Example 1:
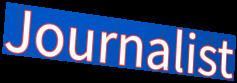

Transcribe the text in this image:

Journalist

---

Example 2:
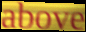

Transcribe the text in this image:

above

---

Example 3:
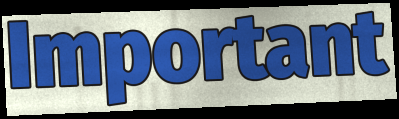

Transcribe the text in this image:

Important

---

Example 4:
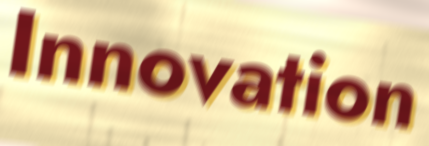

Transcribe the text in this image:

Innovation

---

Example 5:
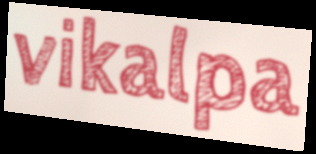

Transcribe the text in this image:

vikalpa